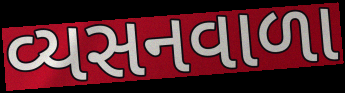
વ્યસનવાળા